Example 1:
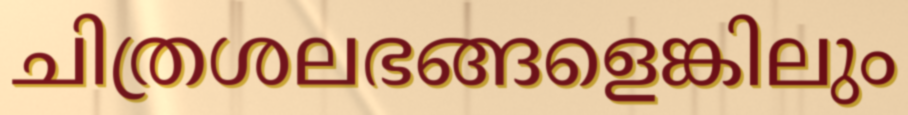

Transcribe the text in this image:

ചിത്രശലഭങ്ങളെങ്കിലും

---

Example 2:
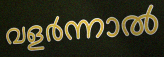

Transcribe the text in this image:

വളർന്നാൽ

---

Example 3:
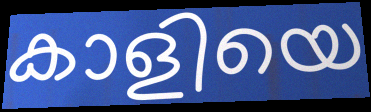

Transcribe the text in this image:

കാളിയെ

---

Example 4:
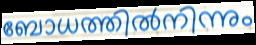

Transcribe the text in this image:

ബോധത്തിൽനിന്നും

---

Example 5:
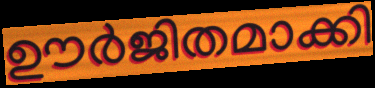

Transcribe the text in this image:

ഊർജിതമാക്കി